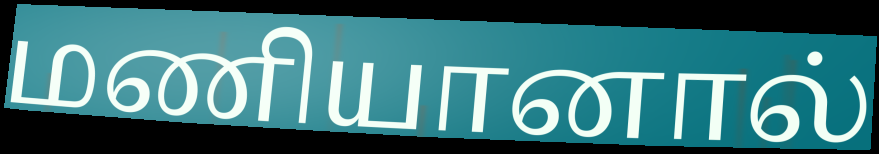
மணியானால்